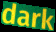
dark